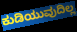
ಕುಡಿಯುವುದಿಲ್ಲ